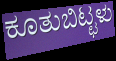
ಕೂತುಬಿಟ್ಟಳು